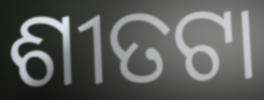
ଶୀତଟା